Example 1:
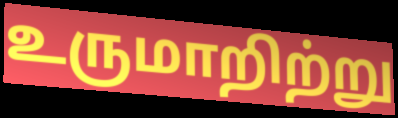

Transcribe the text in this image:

உருமாறிற்று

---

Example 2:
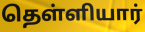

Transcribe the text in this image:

தெள்ளியார்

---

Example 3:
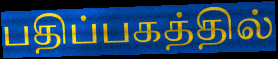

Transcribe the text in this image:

பதிப்பகத்தில்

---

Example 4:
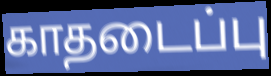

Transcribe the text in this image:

காதடைப்பு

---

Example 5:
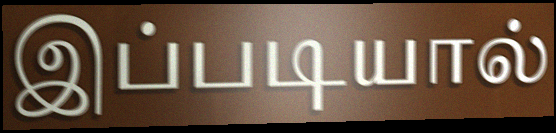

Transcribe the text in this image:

இப்படியால்